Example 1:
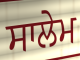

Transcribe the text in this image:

ਸਾਲੇਮ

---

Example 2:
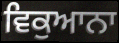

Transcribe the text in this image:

ਵਿਕੁਆਨਾ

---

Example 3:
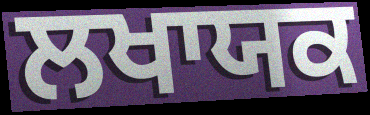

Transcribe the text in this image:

ਲਖਾਯਕ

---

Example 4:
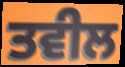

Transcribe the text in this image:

ਤਵੀਲ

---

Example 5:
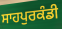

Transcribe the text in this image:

ਸਾਹਪੁਰਕੰਡੀ